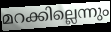
മറക്കില്ലെന്നും